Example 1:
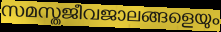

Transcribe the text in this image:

സമസ്തജീവജാലങ്ങളെയും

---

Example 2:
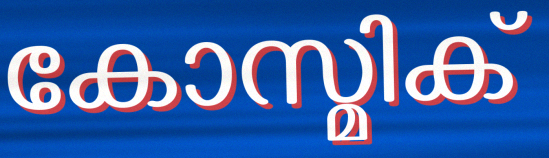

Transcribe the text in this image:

കോസ്മിക്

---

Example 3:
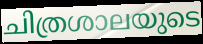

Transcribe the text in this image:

ചിത്രശാലയുടെ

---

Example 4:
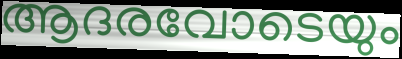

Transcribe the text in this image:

ആദരവോടെയും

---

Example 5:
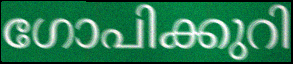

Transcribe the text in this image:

ഗോപിക്കുറി